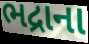
ભદ્રાના